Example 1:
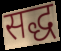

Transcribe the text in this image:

सद्ध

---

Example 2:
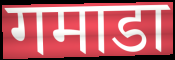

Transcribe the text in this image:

गमाडा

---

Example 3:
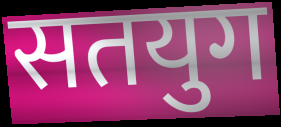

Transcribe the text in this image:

सतयुग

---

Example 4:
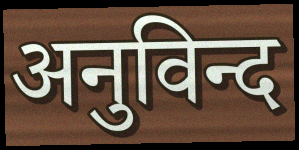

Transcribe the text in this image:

अनुविन्द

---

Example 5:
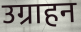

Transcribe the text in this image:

उग्राहन